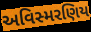
અવિસ્મરણિય